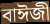
বাঈজী